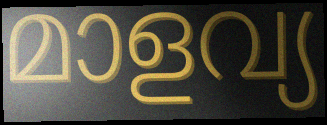
മാളവ്യ